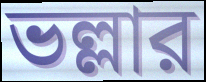
ভল্লার